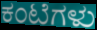
ಕಂಟೆಗಳು